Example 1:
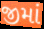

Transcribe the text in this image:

જીમાં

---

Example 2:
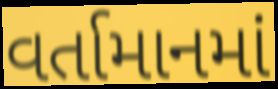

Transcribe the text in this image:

વર્તામાનમાં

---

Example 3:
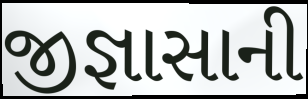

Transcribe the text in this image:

જીજ્ઞાસાની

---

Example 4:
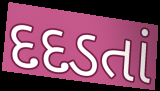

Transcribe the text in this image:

દદડતાં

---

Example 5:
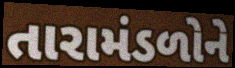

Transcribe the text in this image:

તારામંડળોને